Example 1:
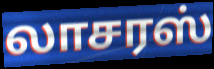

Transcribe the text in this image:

லாசரஸ்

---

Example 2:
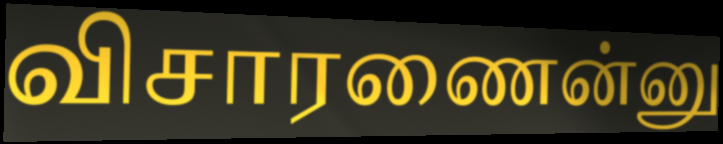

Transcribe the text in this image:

விசாரணைன்னு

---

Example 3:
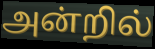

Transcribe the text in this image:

அன்றில்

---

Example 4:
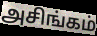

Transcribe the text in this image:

அசிங்கம்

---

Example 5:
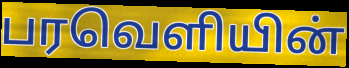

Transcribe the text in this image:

பரவெளியின்